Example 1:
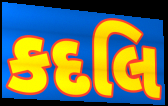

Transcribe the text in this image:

કદલિ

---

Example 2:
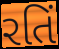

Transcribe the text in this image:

રતિં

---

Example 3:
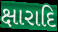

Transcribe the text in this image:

ક્ષારાદિ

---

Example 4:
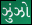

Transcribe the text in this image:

ઝુંઝો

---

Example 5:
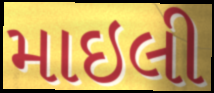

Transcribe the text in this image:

માઇલી